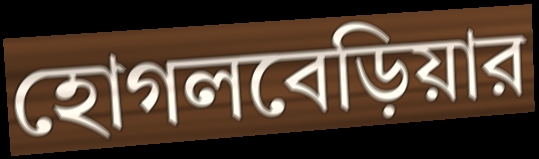
হোগলবেড়িয়ার